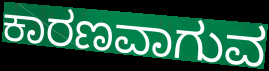
ಕಾರಣವಾಗುವ